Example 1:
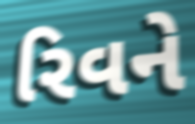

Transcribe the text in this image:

રિવને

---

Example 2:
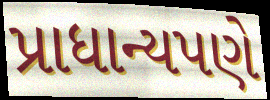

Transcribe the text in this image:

પ્રાધાન્યપણે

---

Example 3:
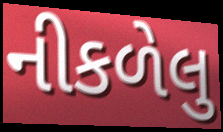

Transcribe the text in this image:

નીકળેલુ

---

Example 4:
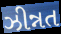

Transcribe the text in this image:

ઝીન્નત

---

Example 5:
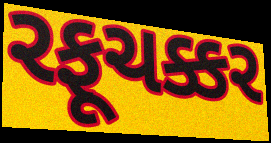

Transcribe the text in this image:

રફૂચક્કર